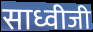
साध्वीजी